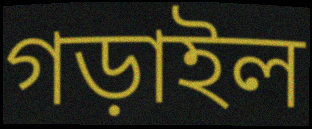
গড়াইল